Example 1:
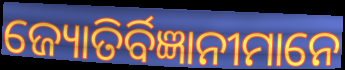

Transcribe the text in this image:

ଜ୍ୟୋତିର୍ବିଜ୍ଞାନୀମାନେ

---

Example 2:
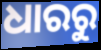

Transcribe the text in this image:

ଧାରରୁ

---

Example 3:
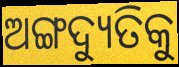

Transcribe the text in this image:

ଅଙ୍ଗଦ୍ୟୁତିକୁ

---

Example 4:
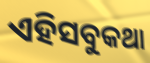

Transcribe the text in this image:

ଏହିସବୁକଥା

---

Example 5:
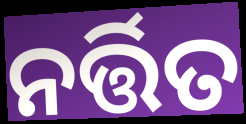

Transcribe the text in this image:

ନର୍ତ୍ତିତ